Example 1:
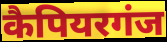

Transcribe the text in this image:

कैपियरगंज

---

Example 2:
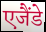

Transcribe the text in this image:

एजैंडे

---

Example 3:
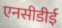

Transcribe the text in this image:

एनसीडीई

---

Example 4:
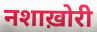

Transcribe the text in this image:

नशाख़ोरी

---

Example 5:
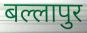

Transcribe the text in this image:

बल्लापुर